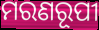
ମରଣରୂପୀ